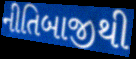
નીતિબાજીથી